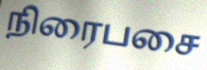
நிரைபசை